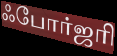
ஃபோர்ஜரி